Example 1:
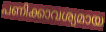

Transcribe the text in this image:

പണിക്കാവശ്യമായ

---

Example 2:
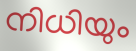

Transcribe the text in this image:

നിധിയും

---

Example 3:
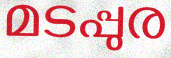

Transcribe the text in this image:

മടപ്പുര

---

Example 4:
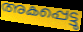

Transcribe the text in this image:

അകപ്പെട്ടു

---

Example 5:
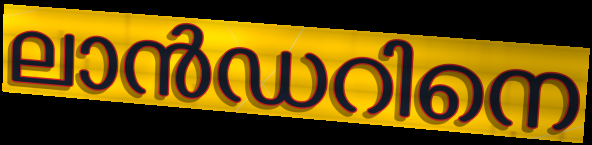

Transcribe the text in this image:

ലാൻഡറിനെ